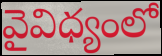
వైవిధ్యంలో